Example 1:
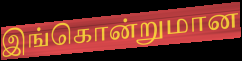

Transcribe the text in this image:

இங்கொன்றுமான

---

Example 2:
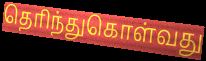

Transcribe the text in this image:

தெரிந்துகொள்வது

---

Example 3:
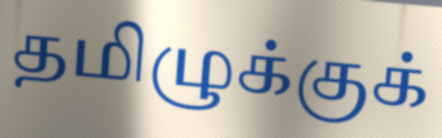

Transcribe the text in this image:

தமிழுக்குக்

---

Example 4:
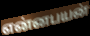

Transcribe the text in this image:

என்னபயன்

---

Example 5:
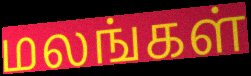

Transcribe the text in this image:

மலங்கள்